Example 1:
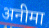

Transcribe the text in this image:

अनीमा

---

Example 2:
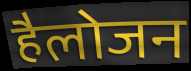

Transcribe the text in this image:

हैलोजन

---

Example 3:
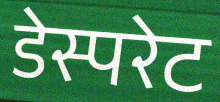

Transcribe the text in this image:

डेस्परेट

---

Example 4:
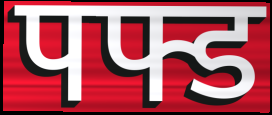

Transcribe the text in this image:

पफ्ड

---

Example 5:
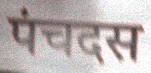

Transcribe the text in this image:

पंचदस